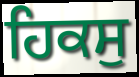
ਹਿਕਸੁ